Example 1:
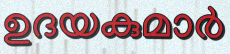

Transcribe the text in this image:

ഉദയകുമാർ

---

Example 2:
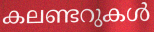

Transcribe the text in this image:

കലണ്ടറുകൾ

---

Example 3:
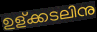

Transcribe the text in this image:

ഉള്ക്കടലിനു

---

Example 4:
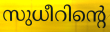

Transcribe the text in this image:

സുധീറിന്റെ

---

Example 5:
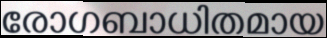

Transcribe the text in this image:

രോഗബാധിതമായ